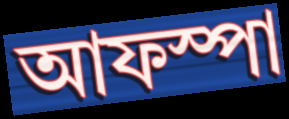
আফস্পা